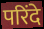
परिंदे